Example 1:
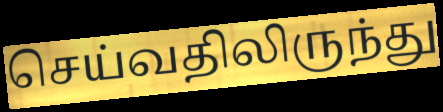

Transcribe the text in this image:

செய்வதிலிருந்து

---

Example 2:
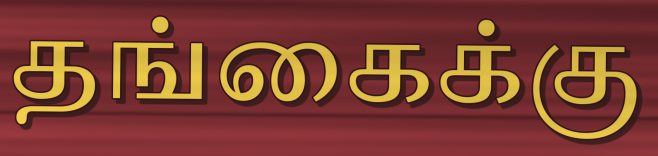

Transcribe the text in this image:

தங்கைக்கு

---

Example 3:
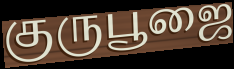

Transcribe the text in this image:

குருபூஜை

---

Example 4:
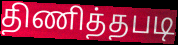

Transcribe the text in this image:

திணித்தபடி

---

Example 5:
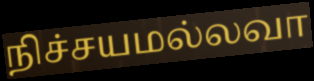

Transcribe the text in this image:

நிச்சயமல்லவா